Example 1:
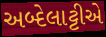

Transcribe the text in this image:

અબ્દેલાટ્ટીએ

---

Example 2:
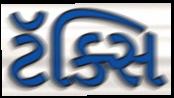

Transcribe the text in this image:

ટૅક્સિ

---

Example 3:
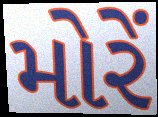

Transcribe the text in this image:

મોરેં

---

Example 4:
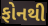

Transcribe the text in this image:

ફોનથી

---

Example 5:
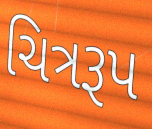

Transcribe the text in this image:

ચિત્રરૂપ